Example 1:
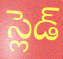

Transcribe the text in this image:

స్లెడ్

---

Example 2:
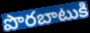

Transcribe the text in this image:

పొరబాటుకి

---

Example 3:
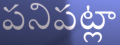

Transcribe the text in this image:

పనిపట్లా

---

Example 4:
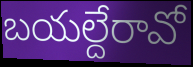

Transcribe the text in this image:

బయల్దేరావో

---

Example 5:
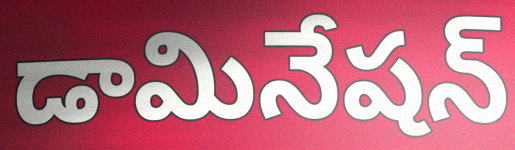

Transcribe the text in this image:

డామినేషన్